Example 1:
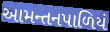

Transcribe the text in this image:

આમન્તનપાળિયં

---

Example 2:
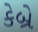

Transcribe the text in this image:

કેબ્રે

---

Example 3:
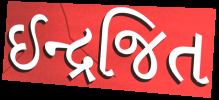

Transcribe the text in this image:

ઈન્દ્રજિત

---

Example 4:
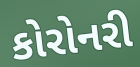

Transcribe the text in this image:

કોરોનરી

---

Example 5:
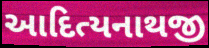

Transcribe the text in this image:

આદિત્યનાથજી